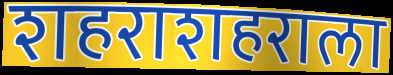
शहराशहराला